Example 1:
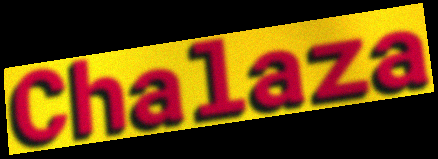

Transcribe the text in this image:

Chalaza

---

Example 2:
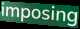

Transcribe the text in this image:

imposing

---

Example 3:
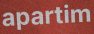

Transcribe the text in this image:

apartim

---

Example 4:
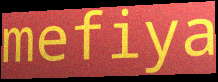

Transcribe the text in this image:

mefiya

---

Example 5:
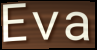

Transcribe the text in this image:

Eva